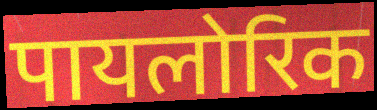
पायलोरिक